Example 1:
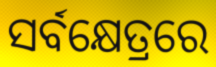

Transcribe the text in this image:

ସର୍ବକ୍ଷେତ୍ରରେ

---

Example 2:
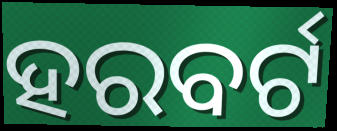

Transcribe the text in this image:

ହରବର୍ଟ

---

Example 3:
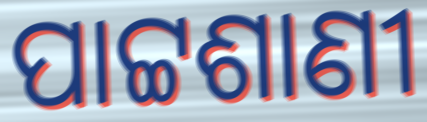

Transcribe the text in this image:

ପାଟ୍ଟଶାଣୀ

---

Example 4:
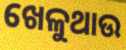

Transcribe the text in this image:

ଖେଳୁଥାଉ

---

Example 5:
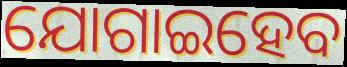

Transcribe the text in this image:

ଯୋଗାଇହେବ